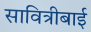
सावित्रीबाई